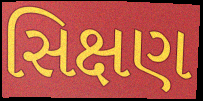
સિક્ષણ